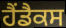
ਹੈਂਡੈਕਸ